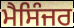
ਮੈਸਿੰਜਰ